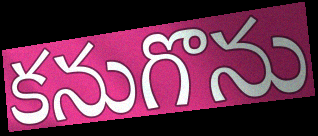
కనుగొను